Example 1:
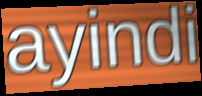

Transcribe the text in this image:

ayindi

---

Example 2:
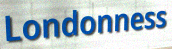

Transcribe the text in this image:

Londonness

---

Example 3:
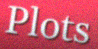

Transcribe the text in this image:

Plots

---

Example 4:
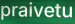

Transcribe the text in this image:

praivetu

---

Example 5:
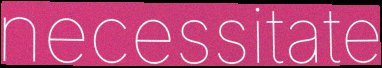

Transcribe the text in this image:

necessitate